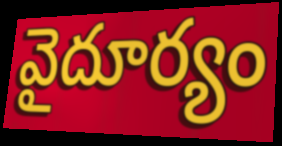
వైదూర్యం